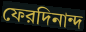
ফেরদিনান্দ